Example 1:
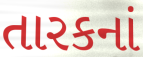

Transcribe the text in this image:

તારકનાં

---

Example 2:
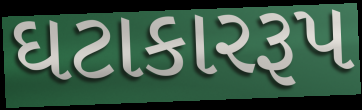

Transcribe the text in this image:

ઘટાકારરૂપ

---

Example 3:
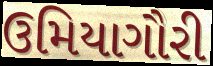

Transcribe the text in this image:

ઉમિયાગૌરી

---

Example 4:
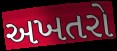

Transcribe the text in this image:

અખતરો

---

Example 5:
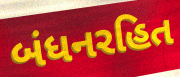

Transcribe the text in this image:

બંધનરહિત